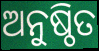
ଅନୁଷ୍ଠିତ